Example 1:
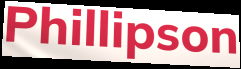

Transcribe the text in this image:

Phillipson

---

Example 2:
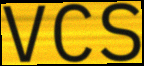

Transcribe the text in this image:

VCS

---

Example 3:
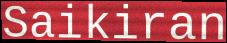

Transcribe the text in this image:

Saikiran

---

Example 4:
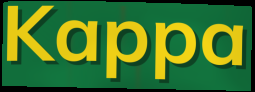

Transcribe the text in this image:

Kappa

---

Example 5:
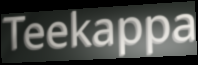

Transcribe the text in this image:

Teekappa